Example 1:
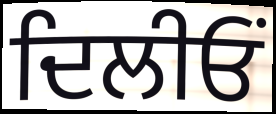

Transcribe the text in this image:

ਦਿਲੀਓਂ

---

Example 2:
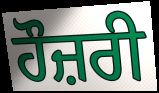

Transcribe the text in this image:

ਹੌਜ਼ਰੀ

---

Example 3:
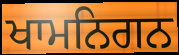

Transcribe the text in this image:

ਖਾਮਨਿਗਨ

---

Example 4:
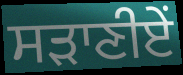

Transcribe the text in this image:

ਸੜਾਣੀਏਂ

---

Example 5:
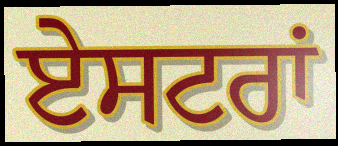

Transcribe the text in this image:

ਏਸਟਰਾਂ